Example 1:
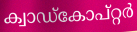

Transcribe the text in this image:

ക്വാഡ്കോപ്റ്റർ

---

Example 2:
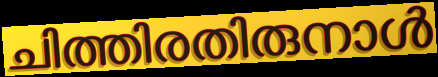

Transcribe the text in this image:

ചിത്തിരതിരുനാൾ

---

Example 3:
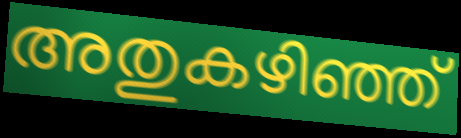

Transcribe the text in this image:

അതുകഴിഞ്ഞ്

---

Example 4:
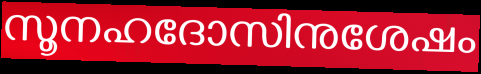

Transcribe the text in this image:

സൂനഹദോസിനുശേഷം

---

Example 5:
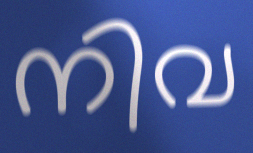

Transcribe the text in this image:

നിവ